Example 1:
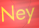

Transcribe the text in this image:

Ney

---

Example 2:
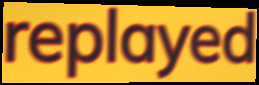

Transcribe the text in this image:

replayed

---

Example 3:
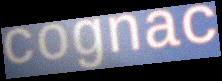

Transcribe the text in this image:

cognac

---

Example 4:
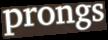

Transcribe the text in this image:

prongs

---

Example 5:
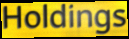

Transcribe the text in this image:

Holdings